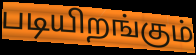
படியிறங்கும்